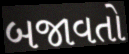
બજાવતો